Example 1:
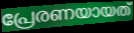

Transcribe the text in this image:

പ്രേരണയായത്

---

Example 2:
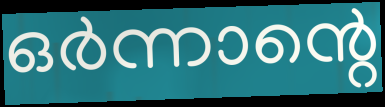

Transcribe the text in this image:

ഒർന്നാന്റെ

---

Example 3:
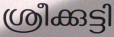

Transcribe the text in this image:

ശ്രീക്കുട്ടി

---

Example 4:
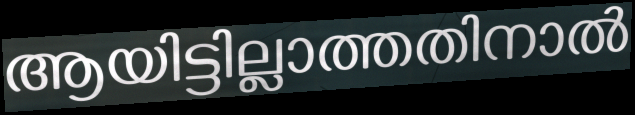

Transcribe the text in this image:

ആയിട്ടില്ലാത്തതിനാൽ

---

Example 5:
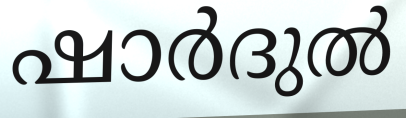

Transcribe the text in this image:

ഷാർദുൽ